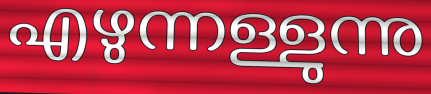
എഴുന്നള്ളുന്നു